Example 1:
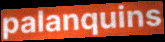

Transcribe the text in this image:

palanquins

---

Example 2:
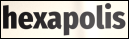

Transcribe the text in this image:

hexapolis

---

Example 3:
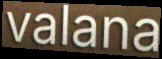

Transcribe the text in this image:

valana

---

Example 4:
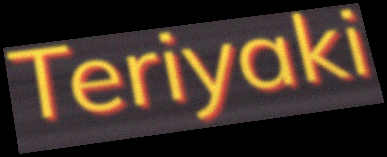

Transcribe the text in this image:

Teriyaki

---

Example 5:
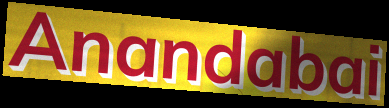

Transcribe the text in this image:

Anandabai